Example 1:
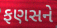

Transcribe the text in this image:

ફણસને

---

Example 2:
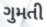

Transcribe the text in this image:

ગુમતી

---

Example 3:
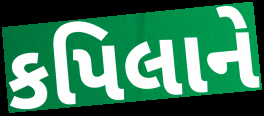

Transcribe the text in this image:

કપિલાને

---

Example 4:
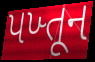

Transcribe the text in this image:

પખ્તૂન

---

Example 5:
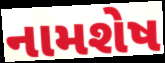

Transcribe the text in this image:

નામશેષ